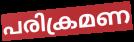
പരിക്രമണ